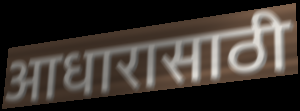
आधारासाठी